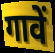
गावें